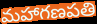
మహాగణపతి